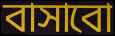
বাসাবো